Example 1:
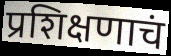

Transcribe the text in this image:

प्रशिक्षणाचं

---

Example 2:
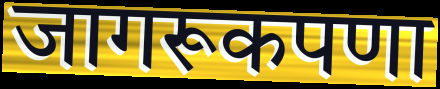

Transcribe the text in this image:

जागरूकपणा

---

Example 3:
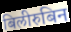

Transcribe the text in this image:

बिलीरुबिन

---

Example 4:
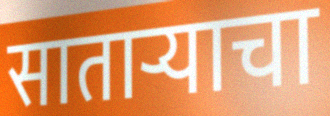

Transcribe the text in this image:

साताऱ्याचा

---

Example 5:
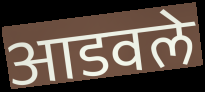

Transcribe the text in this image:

आडवले